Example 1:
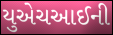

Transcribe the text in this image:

યુએચઆઈની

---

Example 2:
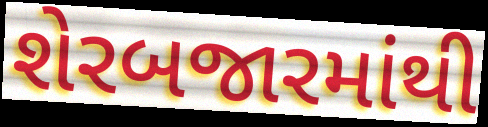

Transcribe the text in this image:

શેરબજારમાંથી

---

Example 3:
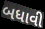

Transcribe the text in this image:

બધાવી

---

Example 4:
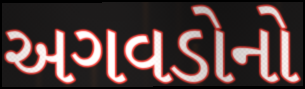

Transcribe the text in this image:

અગવડોનો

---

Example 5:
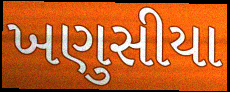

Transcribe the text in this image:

ખણુસીયા